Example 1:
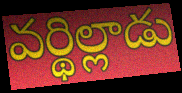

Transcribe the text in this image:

వర్థిల్లాడు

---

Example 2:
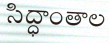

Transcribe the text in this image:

సిద్ధాంతాల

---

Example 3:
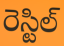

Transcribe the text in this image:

రెస్టిల్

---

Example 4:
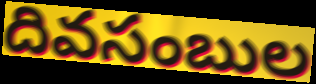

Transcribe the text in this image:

దివసంబుల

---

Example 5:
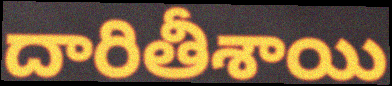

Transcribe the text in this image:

దారితీశాయి